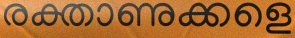
രക്താണുക്കളെ